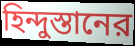
হিন্দুস্তানের